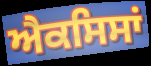
ਐਕਸਿਸਾਂ